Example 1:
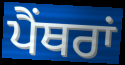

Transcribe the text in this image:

ਪੈਂਥਰਾਂ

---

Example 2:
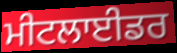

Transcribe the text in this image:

ਮੀਟਲਾਈਡਰ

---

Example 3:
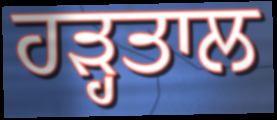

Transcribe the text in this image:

ਹੜ੍ਹਤਾਲ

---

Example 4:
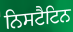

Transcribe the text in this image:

ਨਿਸਟੈਟਿਨ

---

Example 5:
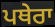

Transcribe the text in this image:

ਪਥੇਰਾ